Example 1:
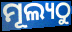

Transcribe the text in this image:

ମୂଲ୍ୟଠୁ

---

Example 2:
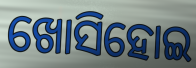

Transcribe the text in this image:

ଖୋସିହୋଇ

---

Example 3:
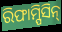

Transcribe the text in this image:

ରିଫାମ୍ପିସିନ୍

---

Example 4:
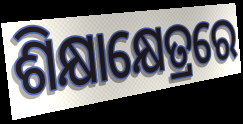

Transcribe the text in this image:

ଶିକ୍ଷାକ୍ଷେତ୍ରରେ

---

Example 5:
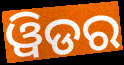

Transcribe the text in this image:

ୱିଡର